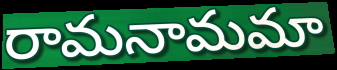
రామనామమా